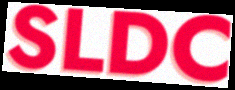
SLDC